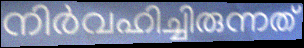
നിർവഹിച്ചിരുന്നത്